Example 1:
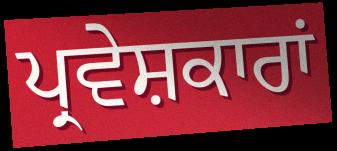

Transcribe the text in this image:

ਪ੍ਰਵੇਸ਼ਕਾਰਾਂ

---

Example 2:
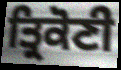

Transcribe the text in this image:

ਤ੍ਰਿਕੋਣੀ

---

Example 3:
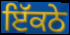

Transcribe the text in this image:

ਇੱਕਠੇ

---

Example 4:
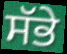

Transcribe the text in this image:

ਸੱਭੇ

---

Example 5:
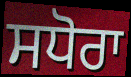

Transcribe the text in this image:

ਸਧੋਰਾ